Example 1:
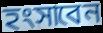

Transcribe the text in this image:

হংসাবেন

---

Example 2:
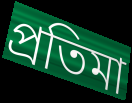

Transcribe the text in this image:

প্রতিমা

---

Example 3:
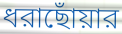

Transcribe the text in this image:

ধরাছোঁয়ার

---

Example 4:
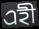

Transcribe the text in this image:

এহী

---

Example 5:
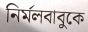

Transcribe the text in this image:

নির্মলবাবুকে